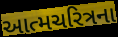
આત્મચરિત્રના